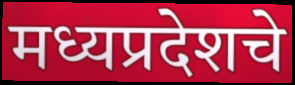
मध्यप्रदेशचे